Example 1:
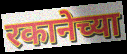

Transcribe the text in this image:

रकानेच्या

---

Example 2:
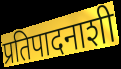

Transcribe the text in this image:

प्रतिपादनाशी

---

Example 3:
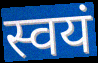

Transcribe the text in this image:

स्वयं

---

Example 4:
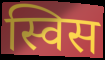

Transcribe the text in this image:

स्विस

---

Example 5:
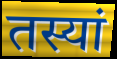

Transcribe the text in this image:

तस्यां